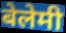
बेलेमी